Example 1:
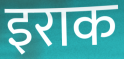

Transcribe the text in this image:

इराक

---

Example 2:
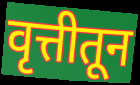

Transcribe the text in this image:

वृत्तीतून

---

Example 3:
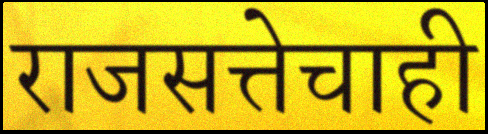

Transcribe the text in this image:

राजसत्तेचाही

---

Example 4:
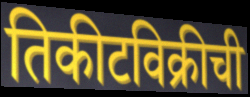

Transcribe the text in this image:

तिकीटविक्रीची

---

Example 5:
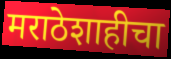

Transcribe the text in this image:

मराठेशाहीचा